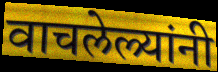
वाचलेल्यांनी